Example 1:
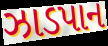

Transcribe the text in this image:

ઝાડપાન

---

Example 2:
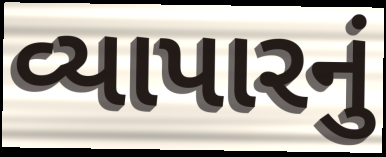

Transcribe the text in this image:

વ્યાપારનું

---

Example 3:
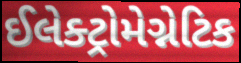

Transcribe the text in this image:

ઈલેક્ટ્રોમેગ્નેટિક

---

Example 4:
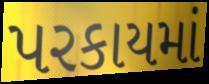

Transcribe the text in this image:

પરકાયમાં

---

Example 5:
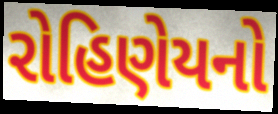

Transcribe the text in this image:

રોહિણેયનો